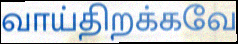
வாய்திறக்கவே